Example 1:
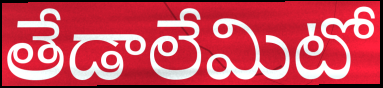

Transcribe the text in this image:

తేడాలేమిటో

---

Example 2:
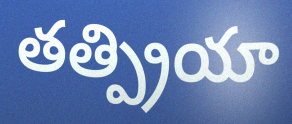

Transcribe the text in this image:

తత్ప్రియా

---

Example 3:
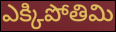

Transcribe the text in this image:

ఎక్కిపోతిమి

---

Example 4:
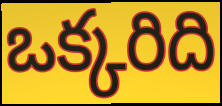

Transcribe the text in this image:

ఒక్కరిది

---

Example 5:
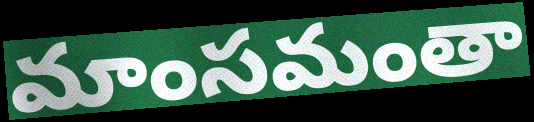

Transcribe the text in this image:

మాంసమంతా